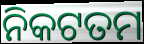
ନିକଟତମ